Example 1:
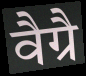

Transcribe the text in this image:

वैग्रै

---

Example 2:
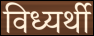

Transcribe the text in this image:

विध्यर्थी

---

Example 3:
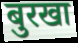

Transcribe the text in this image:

बुरखा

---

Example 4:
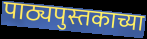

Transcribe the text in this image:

पाठ्यपुस्तकाच्या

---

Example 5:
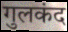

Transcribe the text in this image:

गुलकंद